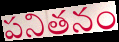
పనితనం